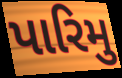
પારિમુ